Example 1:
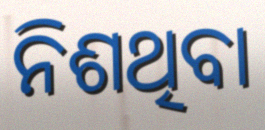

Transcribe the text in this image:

ନିଶଥିବା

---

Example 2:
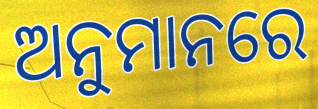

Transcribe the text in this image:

ଅନୁମାନରେ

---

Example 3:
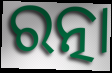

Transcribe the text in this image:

ରତ୍ନା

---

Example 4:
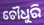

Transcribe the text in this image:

ଚୌଧୁରି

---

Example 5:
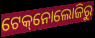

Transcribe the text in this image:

ଟେକ୍‌ନୋଲୋଜିରୁ